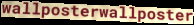
wallposterwallposter